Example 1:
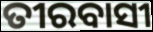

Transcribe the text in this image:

ତୀରବାସୀ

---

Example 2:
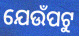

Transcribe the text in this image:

ଯେଉଁପଟୁ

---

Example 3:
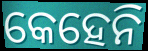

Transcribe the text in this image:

କେହେନି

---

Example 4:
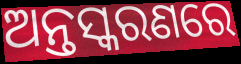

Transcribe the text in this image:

ଅନ୍ତସ୍କରଣରେ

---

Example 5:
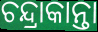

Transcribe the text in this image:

ଚନ୍ଦ୍ରାକାନ୍ତା